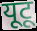
यूटू